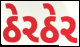
ઠેરઠેર